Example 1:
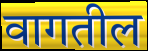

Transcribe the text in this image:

वागतील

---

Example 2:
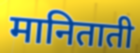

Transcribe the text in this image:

मानिताती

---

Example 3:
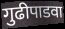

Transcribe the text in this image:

गुढीपाडवा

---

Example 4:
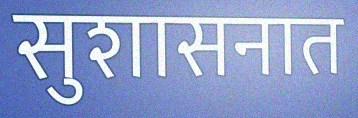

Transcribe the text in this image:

सुशासनात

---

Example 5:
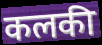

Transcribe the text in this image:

कलकी